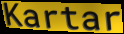
Kartar